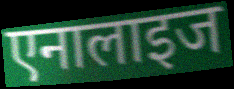
एनालाइज